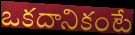
ఒకదానికంటే